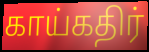
காய்கதிர்